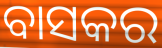
ବାସକର